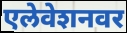
एलेवेशनवर